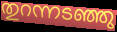
തുറന്നടഞ്ഞു